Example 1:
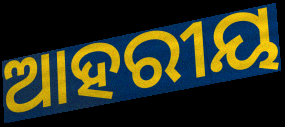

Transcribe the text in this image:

ଆହରୀୟ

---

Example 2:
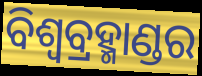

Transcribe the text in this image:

ବିଶ୍ୱବ୍ରହ୍ମାଣ୍ଡର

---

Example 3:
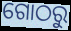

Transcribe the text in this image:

ଗୋଠରୁ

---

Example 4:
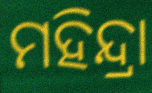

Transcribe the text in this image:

ମହିନ୍ଦ୍ରା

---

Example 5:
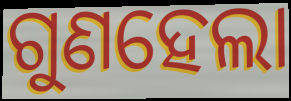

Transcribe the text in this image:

ଗୁଣହେଲା